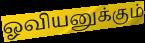
ஓவியனுக்கும்